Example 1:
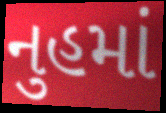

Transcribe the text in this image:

નુહમાં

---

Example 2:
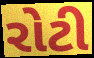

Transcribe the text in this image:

રોટી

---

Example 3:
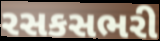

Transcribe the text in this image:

રસકસભરી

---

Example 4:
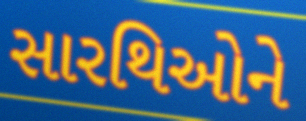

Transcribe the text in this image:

સારથિઓને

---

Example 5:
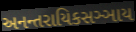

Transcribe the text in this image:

અનન્તરાયિકસઞ્ઞાય